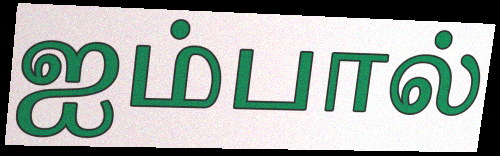
ஐம்பால்